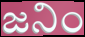
జనిం